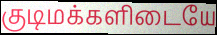
குடிமக்களிடையே